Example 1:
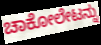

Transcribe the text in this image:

ಚಾಕೋಲೇಟನ್ನು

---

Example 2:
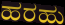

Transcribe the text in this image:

ಹರಹು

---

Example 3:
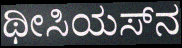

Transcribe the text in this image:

ಥೀಸಿಯಸ್‌ನ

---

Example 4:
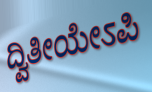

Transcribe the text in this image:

ದ್ವಿತೀಯೇಽಪಿ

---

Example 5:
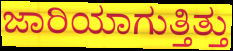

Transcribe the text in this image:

ಜಾರಿಯಾಗುತ್ತಿತ್ತು